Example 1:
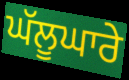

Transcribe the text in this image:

ਘੱਲੂਘਾਰੇ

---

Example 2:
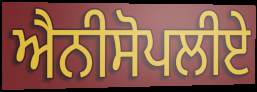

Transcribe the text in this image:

ਐਨੀਸੋਪਲੀਏ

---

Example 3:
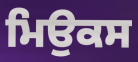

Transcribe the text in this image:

ਮਿਉਕਸ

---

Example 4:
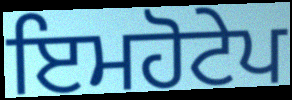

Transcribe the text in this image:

ਇਮਹੋਟੇਪ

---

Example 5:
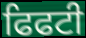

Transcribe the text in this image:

ਫਿਫਟੀ